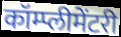
कॉम्प्लीमेंटरी